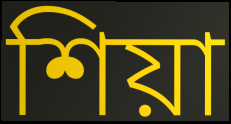
শিয়া